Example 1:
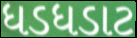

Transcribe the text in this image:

ધડધડાટ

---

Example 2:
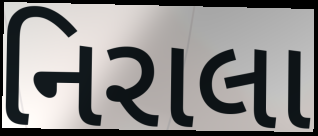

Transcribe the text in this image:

નિરાલા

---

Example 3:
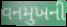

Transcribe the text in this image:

વનમુખની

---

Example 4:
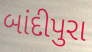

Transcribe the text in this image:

બાંદીપુરા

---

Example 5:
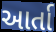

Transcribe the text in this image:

આર્તા